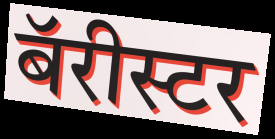
बॅरीस्टर